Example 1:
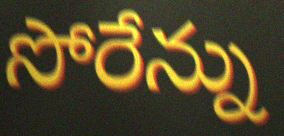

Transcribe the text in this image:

సోరేన్ను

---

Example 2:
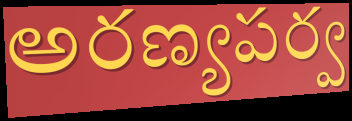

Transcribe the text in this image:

అరణ్యపర్వ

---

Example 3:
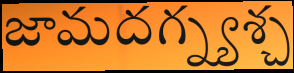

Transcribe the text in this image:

జామదగ్న్యశ్చ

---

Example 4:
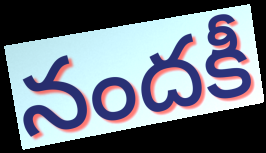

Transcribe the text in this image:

నందకీ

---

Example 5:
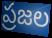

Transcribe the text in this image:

ప్రజల